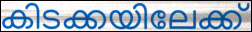
കിടക്കയിലേക്ക്